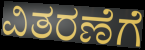
ವಿತರಣೆಗೆ